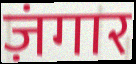
ज़ंगार